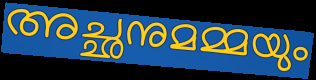
അച്ഛനുമമ്മയും